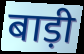
बाड़ी